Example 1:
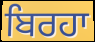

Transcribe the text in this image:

ਬਿਰਹਾ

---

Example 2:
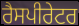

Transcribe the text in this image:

ਰੈਸਪੀਰੇਟਰ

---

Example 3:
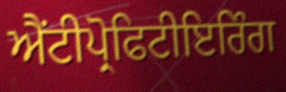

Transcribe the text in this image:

ਐਂਟੀਪ੍ਰੋਫਿਟੀਇਰਿੰਗ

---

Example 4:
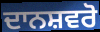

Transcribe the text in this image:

ਦਾਨਸ਼ਵਰੋ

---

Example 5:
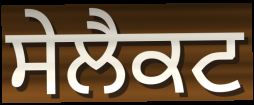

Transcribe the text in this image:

ਸੇਲੈਕਟ